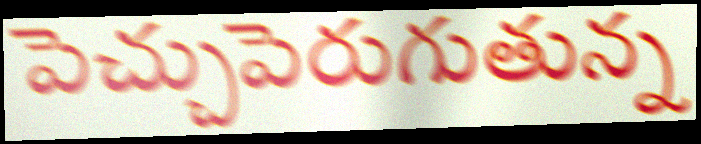
పెచ్చుపెరుగుతున్న